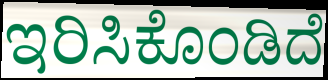
ಇರಿಸಿಕೊಂಡಿದೆ